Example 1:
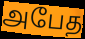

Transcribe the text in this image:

அபேத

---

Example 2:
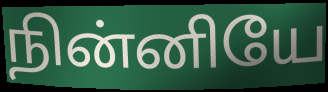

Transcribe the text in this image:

நின்னியே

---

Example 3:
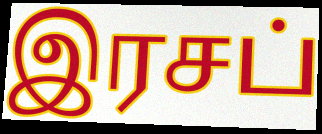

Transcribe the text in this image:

இரசப்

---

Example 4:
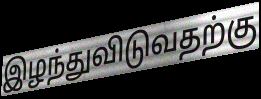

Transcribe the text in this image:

இழந்துவிடுவதற்கு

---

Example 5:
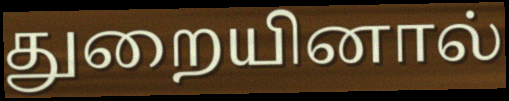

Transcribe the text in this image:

துறையினால்